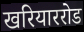
खरियाररोड